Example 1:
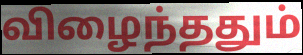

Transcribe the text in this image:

விழைந்ததும்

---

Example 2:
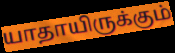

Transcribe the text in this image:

யாதாயிருக்கும்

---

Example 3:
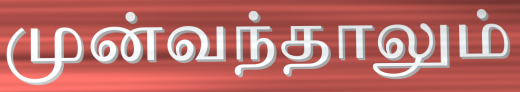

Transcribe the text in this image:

முன்வந்தாலும்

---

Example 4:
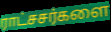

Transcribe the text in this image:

ராட்சசர்களை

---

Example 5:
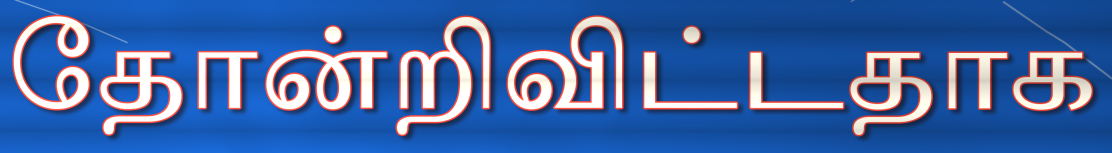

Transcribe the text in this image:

தோன்றிவிட்டதாக